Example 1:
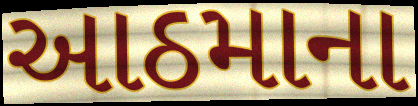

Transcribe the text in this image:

આઠમાના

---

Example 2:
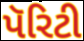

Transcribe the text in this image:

પૅરિટી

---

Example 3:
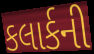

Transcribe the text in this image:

કલાર્કની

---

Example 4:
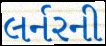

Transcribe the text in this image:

લર્નરની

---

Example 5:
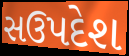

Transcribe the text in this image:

સઉપદેશ